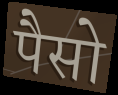
पैसो